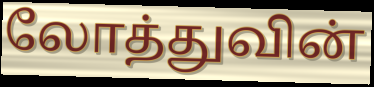
லோத்துவின்